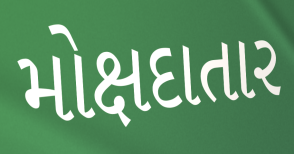
મોક્ષદાતાર